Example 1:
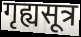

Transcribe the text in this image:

गृह्यसूत्र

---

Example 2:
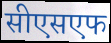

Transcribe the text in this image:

सीएसएफ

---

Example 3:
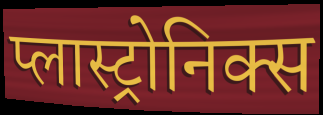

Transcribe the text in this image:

प्लास्ट्रोनिक्स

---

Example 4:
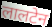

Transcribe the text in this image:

लालटेन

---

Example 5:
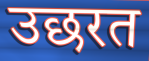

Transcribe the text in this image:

उछरत